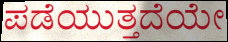
ಪಡೆಯುತ್ತದೆಯೇ